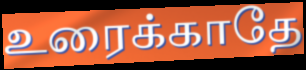
உரைக்காதே